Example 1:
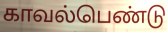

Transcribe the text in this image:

காவல்பெண்டு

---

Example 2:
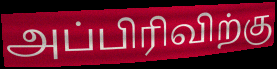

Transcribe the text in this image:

அப்பிரிவிற்கு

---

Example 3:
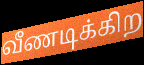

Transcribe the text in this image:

வீணடிக்கிற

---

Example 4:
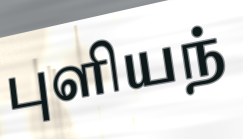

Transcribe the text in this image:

புளியந்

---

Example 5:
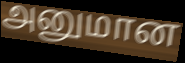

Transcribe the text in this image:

அனுமான